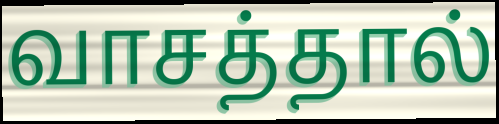
வாசத்தால்